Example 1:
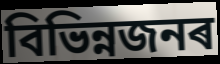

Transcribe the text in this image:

বিভিন্নজনৰ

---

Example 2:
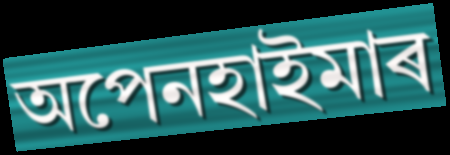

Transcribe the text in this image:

অপেনহাইমাৰ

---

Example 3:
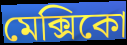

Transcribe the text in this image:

মেক্সিকো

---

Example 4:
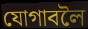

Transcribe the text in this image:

যোগাবলৈ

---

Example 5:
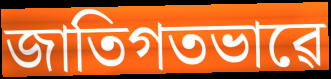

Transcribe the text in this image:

জাতিগতভাৱে